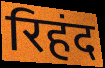
रिहंद